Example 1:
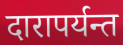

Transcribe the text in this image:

दारापर्यन्त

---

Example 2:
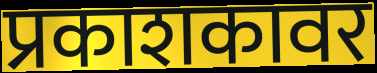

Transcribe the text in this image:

प्रकाशकावर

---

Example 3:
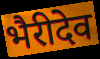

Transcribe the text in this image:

भैरीदेव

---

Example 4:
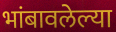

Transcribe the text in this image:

भांबावलेल्या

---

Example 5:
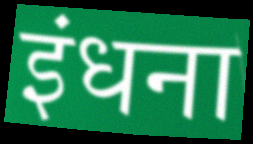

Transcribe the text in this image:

इंधना